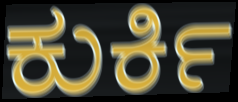
ಕುರ್ಕಿ